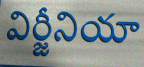
విర్జీనియా